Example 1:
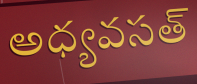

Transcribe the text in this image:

అధ్యవసత్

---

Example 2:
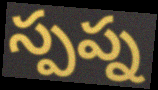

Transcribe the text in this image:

స్పప్న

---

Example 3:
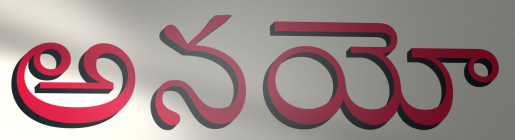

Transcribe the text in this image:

అనయో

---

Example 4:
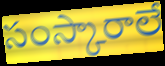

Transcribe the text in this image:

సంస్కారాలే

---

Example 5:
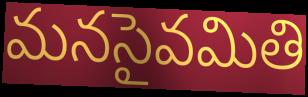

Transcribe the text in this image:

మనసైవమితి